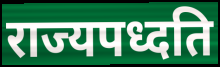
राज्यपध्दति